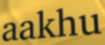
aakhu